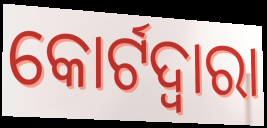
କୋର୍ଟଦ୍ୱାରା